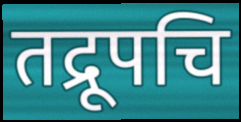
तद्रूपचि